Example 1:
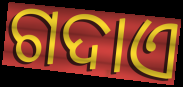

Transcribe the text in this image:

ଗଦାଏ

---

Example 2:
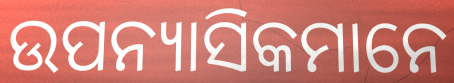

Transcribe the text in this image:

ଉପନ୍ୟାସିକମାନେ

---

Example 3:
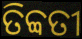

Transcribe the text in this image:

ତିବ୍ବତୀ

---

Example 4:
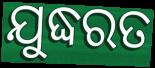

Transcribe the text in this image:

ଯୁଦ୍ଧରତ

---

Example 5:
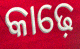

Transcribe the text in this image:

କାଢ଼େ